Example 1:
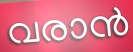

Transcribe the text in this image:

വരാൻ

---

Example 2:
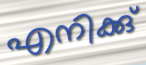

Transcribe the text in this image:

എനിക്കു്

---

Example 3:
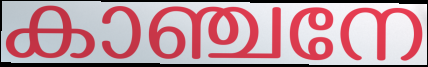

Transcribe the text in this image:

കാഞ്ചനേ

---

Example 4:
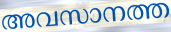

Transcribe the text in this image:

അവസാനത്ത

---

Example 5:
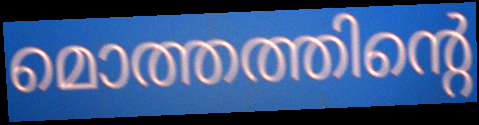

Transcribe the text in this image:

മൊത്തത്തിന്റെ